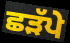
ਛੜੱਪੇ